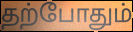
தற்போதும்